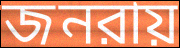
জনরায়